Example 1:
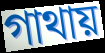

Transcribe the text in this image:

গাথায়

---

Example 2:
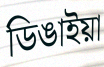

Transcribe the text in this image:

ডিঙাইয়া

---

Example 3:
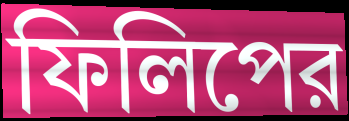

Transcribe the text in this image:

ফিলিপের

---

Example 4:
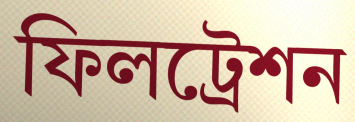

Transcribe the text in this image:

ফিলট্রেশন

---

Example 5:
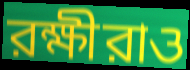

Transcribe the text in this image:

রক্ষীরাও